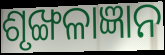
ଶୃଙ୍ଖଳାଜ୍ଞାନ